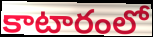
కాటారంలో